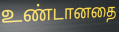
உண்டானதை